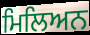
ਮਿਲਿਅਨ